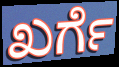
ಖರ್ಗೆ